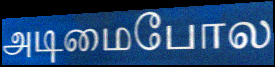
அடிமைபோல